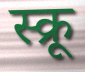
स्क्रू